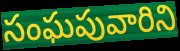
సంఘపువారిని